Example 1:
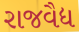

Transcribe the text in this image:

રાજવૈદ્ય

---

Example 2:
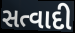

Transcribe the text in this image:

સત્વાદી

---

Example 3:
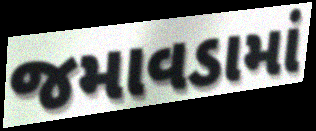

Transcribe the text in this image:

જમાવડામાં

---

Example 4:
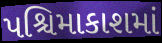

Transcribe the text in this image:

પશ્ચિમાકાશમાં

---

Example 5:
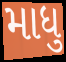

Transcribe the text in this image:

માધુ